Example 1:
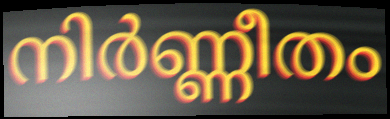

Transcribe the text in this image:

നിർണ്ണീതം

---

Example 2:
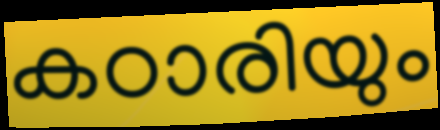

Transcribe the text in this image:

കഠാരിയും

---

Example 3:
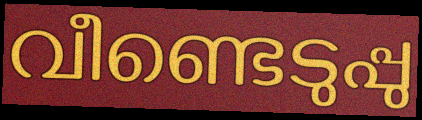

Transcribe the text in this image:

വീണ്ടെടുപ്പു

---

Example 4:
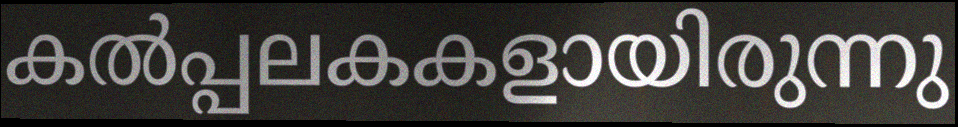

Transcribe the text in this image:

കൽപ്പലകകളായിരുന്നു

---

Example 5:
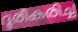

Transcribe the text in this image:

ദൂരീകരിച്ച